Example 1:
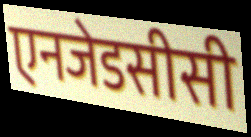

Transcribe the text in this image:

एनजेडसीसी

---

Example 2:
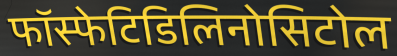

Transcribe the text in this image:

फॉस्फेटिडिलिनोसिटोल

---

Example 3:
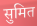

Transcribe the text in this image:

सुमित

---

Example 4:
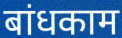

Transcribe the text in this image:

बांधकाम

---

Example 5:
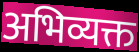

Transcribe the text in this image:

अभिव्यक्त